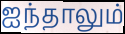
ஐந்தாலும்